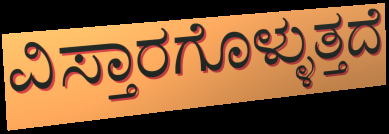
ವಿಸ್ತಾರಗೊಳ್ಳುತ್ತದೆ